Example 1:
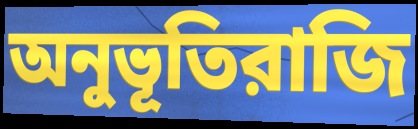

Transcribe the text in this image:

অনুভূতিরাজি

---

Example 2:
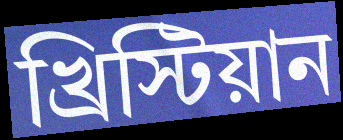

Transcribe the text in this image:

খ্রিস্টিয়ান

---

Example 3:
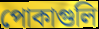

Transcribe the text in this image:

পোকাগুলি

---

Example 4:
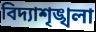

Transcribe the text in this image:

বিদ্যাশৃঙ্খলা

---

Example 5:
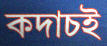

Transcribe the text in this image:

কদাচই